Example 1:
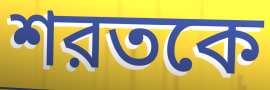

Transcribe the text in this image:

শরতকে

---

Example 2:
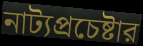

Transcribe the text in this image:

নাট্যপ্রচেষ্টার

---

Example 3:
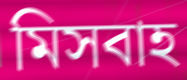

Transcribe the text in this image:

মিসবাহ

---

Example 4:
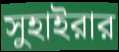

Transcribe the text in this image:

সুহাইরার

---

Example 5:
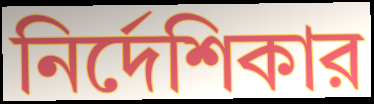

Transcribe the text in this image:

নির্দেশিকার